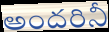
అందరినీ